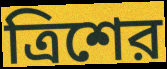
ত্রিশের